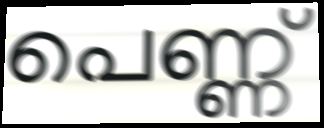
പെണ്ണ്